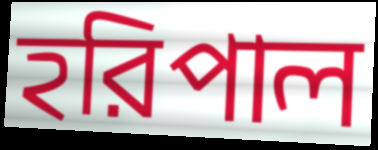
হরিপাল